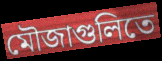
মৌজাগুলিতে